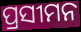
ପ୍ରସୀମନ